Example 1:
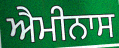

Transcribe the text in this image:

ਐਮੀਨਾਸ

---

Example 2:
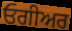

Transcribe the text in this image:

ਓਗੀਅਰ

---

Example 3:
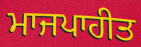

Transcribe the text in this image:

ਮਾਜਪਾਹੀਤ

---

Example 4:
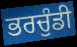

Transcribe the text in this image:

ਭਰਚੁੰਡੀ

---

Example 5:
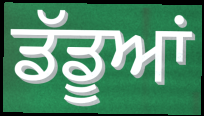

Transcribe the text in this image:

ਡੱਡੂਆਂ